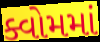
ક્વોમમાં